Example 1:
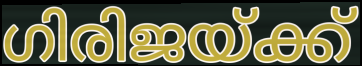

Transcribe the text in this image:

ഗിരിജയ്ക്ക്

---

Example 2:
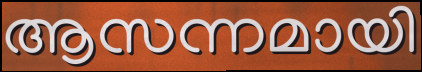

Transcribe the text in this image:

ആസന്നമായി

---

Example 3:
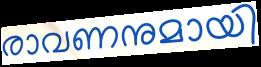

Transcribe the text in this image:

രാവണനുമായി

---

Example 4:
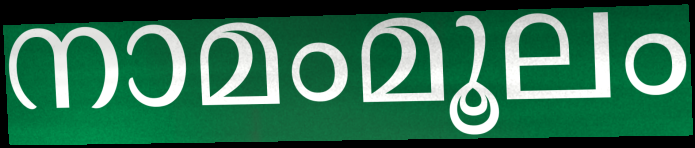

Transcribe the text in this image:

നാമംമൂലം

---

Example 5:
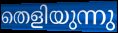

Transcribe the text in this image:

തെളിയുന്നു